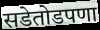
सडेतोडपणा